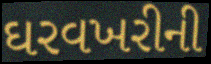
ઘરવખરીની